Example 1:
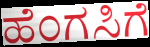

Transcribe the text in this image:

ಹೆಂಗಸಿಗೆ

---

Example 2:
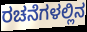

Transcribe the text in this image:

ರಚನೆಗಳಲ್ಲಿನ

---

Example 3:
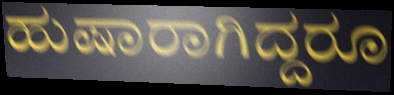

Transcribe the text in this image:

ಹುಷಾರಾಗಿದ್ದರೂ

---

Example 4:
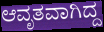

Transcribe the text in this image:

ಆವೃತವಾಗಿದ್ದ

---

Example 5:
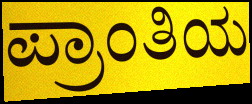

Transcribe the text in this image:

ಪ್ರಾಂತಿಯ